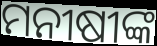
ମନୀଷୀଙ୍କ